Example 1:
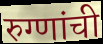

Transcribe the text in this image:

रुग्णांची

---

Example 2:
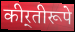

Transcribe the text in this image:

कीर्तीरूपे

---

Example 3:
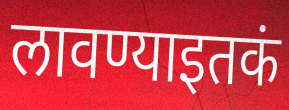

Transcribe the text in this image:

लावण्याइतकं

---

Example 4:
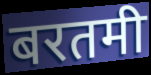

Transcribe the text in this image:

बरतमी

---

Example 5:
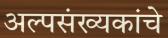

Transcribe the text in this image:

अल्पसंख्यकांचे